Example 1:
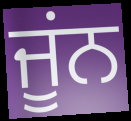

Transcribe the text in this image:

ਜੂਂਨ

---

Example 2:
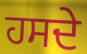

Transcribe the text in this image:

ਹਸਦੇ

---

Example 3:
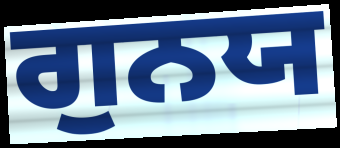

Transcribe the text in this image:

ਗੁਨਯ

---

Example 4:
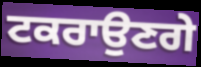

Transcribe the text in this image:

ਟਕਰਾਉਣਗੇ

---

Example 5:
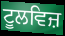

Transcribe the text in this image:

ਟੂਲਵਿਜ਼